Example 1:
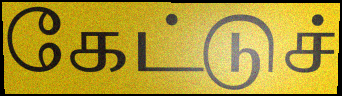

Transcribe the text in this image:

கேட்டுச்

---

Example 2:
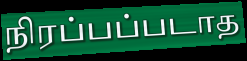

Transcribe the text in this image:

நிரப்பப்படாத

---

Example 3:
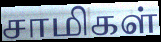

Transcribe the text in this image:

சாமிகள்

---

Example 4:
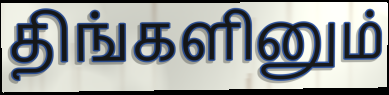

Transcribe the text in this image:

திங்களினும்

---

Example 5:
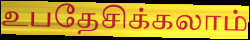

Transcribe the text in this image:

உபதேசிக்கலாம்